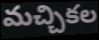
మచ్చికల